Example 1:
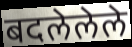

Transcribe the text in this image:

बदलेलेले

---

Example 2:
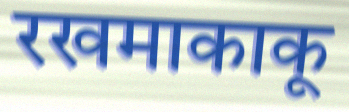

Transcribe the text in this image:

रखमाकाकू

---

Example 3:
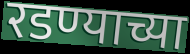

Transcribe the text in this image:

रडण्याच्या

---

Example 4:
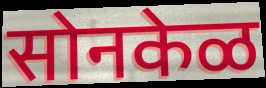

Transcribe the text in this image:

सोनकेळ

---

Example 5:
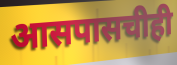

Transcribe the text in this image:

आसपासचीही